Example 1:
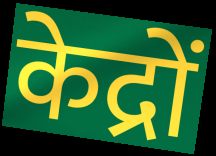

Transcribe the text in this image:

केद्रों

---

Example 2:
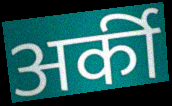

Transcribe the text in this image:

अर्की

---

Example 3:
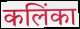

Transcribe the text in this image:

कलिंका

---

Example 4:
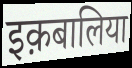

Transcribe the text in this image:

इक़बालिया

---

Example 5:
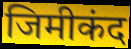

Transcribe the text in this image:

जिमीकंद